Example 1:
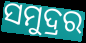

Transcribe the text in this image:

ସମୁଦ୍ରର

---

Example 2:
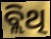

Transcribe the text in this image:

ବ୍ଲିଥି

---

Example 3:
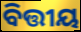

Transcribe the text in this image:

ବିତ୍ତୀୟ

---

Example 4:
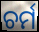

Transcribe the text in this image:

ଚର୍ମ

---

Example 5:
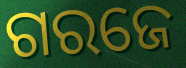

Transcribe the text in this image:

ଗରଜେ